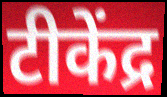
टीकेंद्र